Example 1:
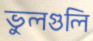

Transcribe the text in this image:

ভুলগুলি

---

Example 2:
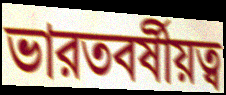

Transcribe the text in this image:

ভারতবর্ষীয়ত্ব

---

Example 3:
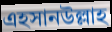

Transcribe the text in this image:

এহসানউল্লাহ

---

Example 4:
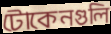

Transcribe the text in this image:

টোকেনগুলি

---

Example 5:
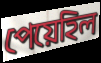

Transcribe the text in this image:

পেয়েহিল